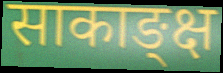
साकाङ्क्ष